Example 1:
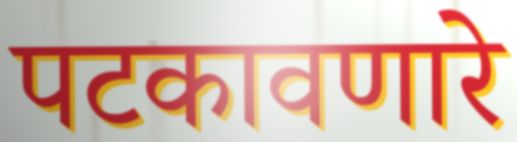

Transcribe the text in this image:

पटकावणारे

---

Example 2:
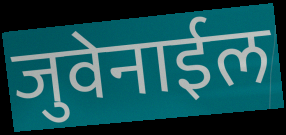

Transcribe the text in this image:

जुवेनाईल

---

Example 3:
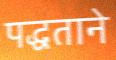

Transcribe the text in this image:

पद्धताने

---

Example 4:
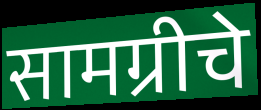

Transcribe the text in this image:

सामग्रीचे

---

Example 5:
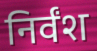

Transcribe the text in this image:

निर्वंश